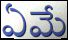
ఏమే